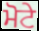
ਮੋਟੇ